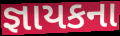
જ્ઞાયકના